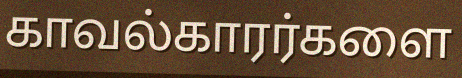
காவல்காரர்களை